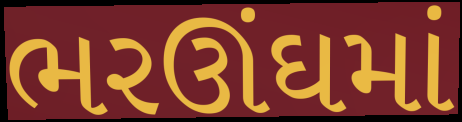
ભરઊંઘમાં